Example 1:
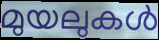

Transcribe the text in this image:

മുയലുകൾ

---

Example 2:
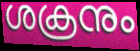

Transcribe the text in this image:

ശക്രനും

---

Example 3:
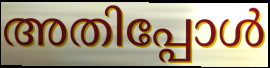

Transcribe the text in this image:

അതിപ്പോൾ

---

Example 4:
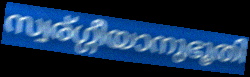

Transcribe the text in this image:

സ്വര്ഗ്ഗീയാനുഭൂതി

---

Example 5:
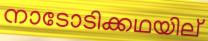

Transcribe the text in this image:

നാടോടിക്കഥയില്